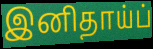
இனிதாய்ப்